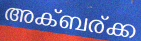
അക്ബര്ക്ക